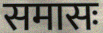
समासः